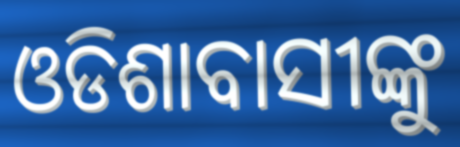
ଓଡିଶାବାସୀଙ୍କୁ